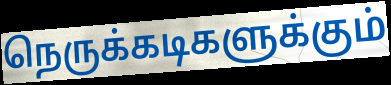
நெருக்கடிகளுக்கும்